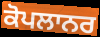
ਕੋਪਲਾਨਰ